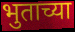
भुताच्या